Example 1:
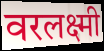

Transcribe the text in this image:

वरलक्ष्‍मी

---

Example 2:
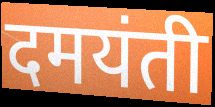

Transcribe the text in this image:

दमयंती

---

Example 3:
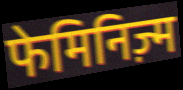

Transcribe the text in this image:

फेमिनिज़्म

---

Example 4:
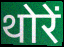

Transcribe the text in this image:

थोरें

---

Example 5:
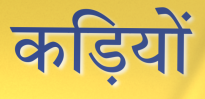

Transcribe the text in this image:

कड़ियों